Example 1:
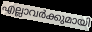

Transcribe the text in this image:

എല്ലാവർക്കുമായി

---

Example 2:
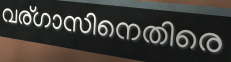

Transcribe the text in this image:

വര്ഗാസിനെതിരെ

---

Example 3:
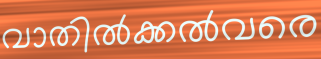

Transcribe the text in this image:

വാതിൽക്കൽവരെ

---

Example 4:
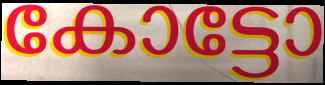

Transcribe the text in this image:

കോട്ടോ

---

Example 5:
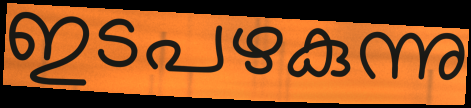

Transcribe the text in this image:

ഇടപഴകുന്നു